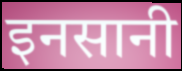
इनसानी